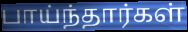
பாய்ந்தார்கள்